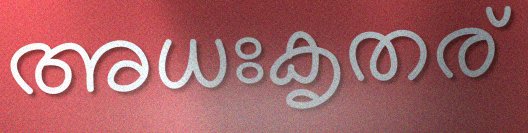
അധഃകൃതര്